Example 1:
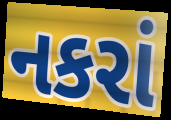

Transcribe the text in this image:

નકરાં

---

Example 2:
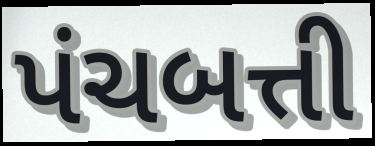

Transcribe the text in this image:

પંચબત્તી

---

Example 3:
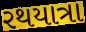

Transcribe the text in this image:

રથયાત્રા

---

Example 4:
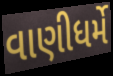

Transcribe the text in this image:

વાણીધર્મે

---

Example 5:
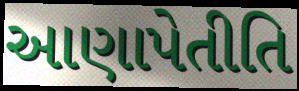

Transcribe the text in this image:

આણાપેતીતિ